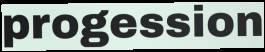
progession